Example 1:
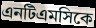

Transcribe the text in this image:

এনটিএমসিকে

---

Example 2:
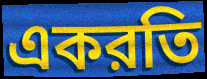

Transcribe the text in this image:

একরতি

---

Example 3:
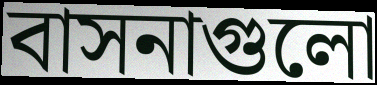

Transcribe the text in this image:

বাসনাগুলো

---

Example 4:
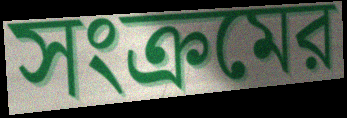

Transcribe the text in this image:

সংক্রমের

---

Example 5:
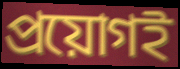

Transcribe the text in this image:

প্রয়োগই